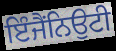
ਇੰਜੈਂਨਿਉਟੀ